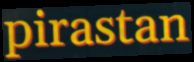
pirastan